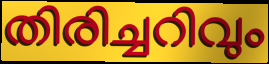
തിരിച്ചറിവും